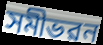
সমীভৱন